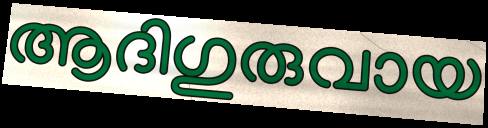
ആദിഗുരുവായ